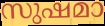
സുഷമാ